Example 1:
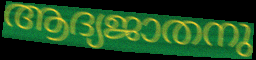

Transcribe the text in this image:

ആദ്യജാതനു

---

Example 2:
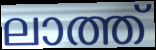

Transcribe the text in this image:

ലാത്ത്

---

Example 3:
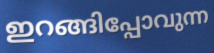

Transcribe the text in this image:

ഇറങ്ങിപ്പോവുന്ന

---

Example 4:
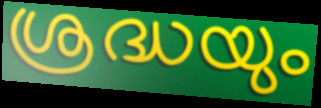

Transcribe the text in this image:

ശ്രദ്ധയും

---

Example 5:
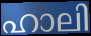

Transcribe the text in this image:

ഹാലി